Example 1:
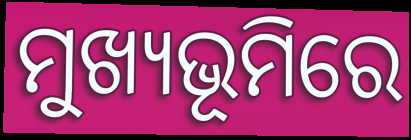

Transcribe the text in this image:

ମୁଖ୍ୟଭୂମିରେ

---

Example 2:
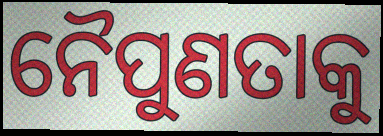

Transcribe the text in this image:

ନୈପୁଣତାକୁ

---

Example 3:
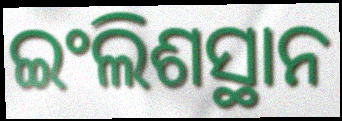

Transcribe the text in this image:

ଇଂଲିଶସ୍ଥାନ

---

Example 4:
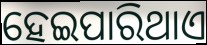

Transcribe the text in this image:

ହେଇପାରିଥାଏ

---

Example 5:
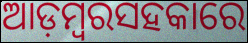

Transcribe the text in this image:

ଆଡ଼ମ୍ବରସହକାରେ